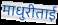
माधुरीताई